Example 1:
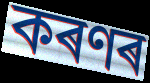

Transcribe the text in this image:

কৰণৰ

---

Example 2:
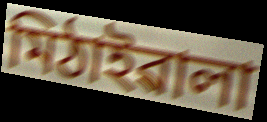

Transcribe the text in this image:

মিঠাইৱালা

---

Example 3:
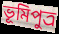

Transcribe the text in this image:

ভূমিপুত্ৰ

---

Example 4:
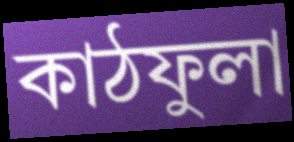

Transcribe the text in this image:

কাঠফুলা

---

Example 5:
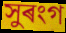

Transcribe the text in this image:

সুৰংগ